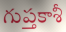
గుప్తకాశీ